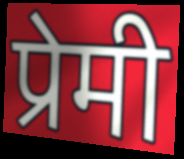
प्रेमी